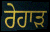
ਰੇਹਾੜ